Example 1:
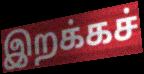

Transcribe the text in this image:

இறக்கச்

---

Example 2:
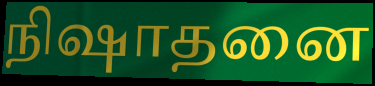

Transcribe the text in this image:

நிஷாதனை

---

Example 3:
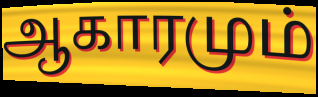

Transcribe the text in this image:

ஆகாரமும்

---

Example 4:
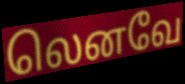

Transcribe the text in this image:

லெனவே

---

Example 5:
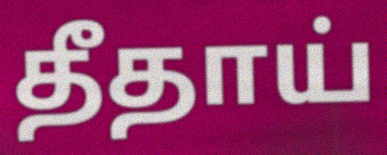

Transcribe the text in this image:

தீதாய்